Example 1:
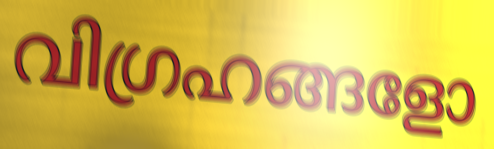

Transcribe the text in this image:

വിഗ്രഹങ്ങളോ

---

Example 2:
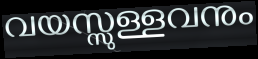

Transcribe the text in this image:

വയസ്സുള്ളവനും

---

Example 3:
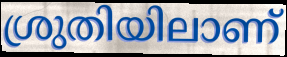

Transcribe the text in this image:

ശ്രുതിയിലാണ്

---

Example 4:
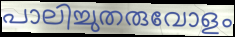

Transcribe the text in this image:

പാലിച്ചുതരുവോളം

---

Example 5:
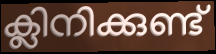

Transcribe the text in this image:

ക്ലിനിക്കുണ്ട്